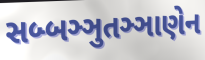
સબ્બઞ્ઞુતઞ્ઞાણેન